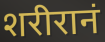
शरीरानं